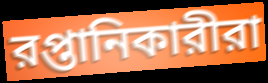
রপ্তানিকারীরা